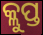
କ୍ଲୁପ୍ତ